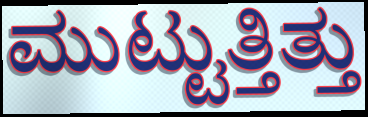
ಮುಟ್ಟುತ್ತಿತ್ತು